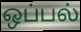
ஒப்பல்